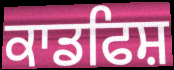
ਕਾਡਫਿਸ਼